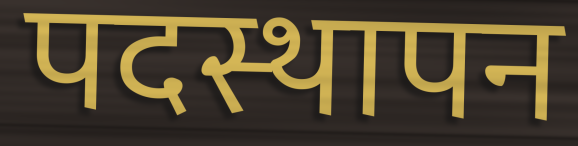
पदस्थापन